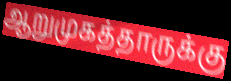
ஆறுமுகத்தாருக்கு